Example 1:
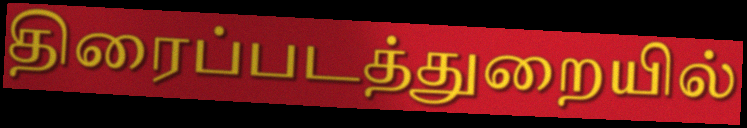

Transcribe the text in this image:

திரைப்படத்துறையில்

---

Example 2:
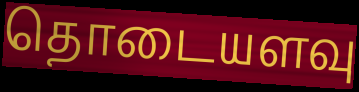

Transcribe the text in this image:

தொடையளவு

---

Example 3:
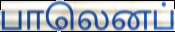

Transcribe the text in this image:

பாலெனப்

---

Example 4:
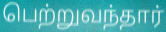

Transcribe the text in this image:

பெற்றுவந்தார்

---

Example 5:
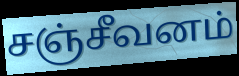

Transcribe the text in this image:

சஞ்சீவனம்